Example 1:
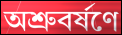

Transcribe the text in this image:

অশ্রুবর্ষণে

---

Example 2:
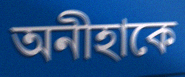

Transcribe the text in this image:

অনীহাকে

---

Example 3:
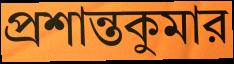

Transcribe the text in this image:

প্রশান্তকুমার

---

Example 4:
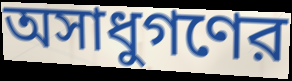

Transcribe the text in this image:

অসাধুগণের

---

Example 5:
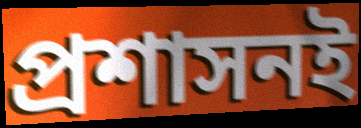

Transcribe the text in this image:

প্রশাসনই